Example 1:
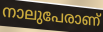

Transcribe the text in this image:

നാലുപേരാണ്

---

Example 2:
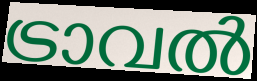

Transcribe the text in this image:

ട്രാവൽ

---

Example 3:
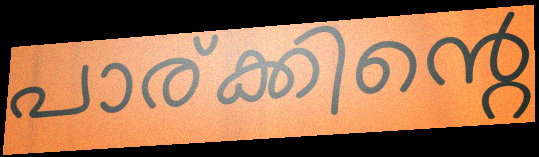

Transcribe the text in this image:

പാര്ക്കിന്റെ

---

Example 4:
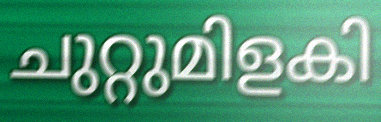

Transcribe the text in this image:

ചുറ്റുമിളകി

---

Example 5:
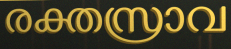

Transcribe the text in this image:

രക്തസ്രാവ